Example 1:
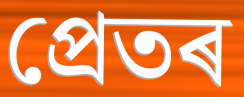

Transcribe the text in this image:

প্ৰেতৰ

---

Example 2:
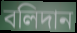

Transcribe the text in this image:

বলিদান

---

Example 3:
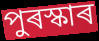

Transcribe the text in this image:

পুৰস্কাৰ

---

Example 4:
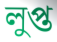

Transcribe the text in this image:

লুপ্ত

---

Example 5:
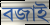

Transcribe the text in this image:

বজাই